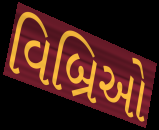
વિબ્રિઓ